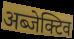
अब्जेक्टिव